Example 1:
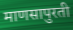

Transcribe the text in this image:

माणसापुरती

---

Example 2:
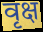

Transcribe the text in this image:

वृक्ष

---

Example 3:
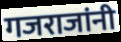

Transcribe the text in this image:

गजराजांनी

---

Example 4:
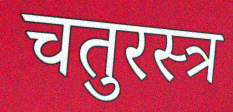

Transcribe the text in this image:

चतुरस्त्र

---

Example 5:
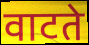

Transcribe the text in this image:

वाटते